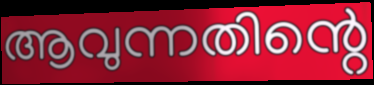
ആവുന്നതിന്റെ